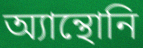
অ্যান্থোনি